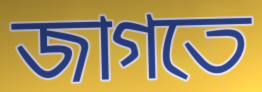
জাগতে